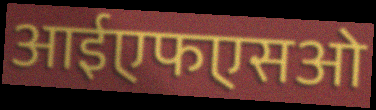
आईएफएसओ